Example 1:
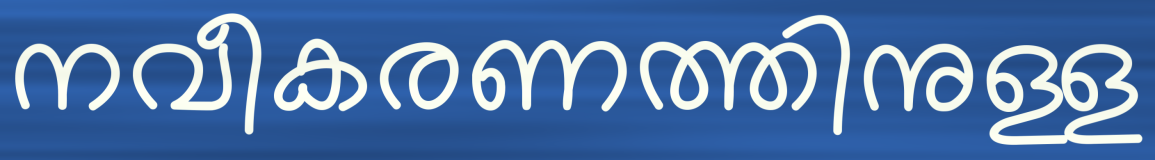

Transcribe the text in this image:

നവീകരണത്തിനുള്ള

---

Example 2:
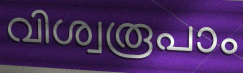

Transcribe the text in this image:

വിശ്വരൂപാം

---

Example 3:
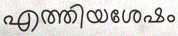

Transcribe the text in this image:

എത്തിയശേഷം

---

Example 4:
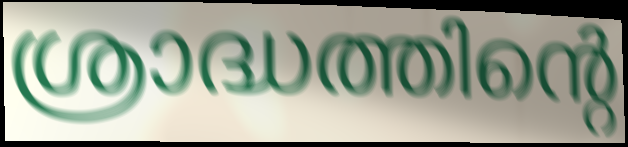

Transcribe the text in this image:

ശ്രാദ്ധത്തിന്റെ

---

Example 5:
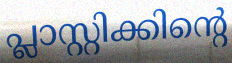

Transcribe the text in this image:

പ്ലാസ്റ്റിക്കിന്റെ